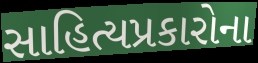
સાહિત્યપ્રકારોના